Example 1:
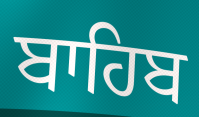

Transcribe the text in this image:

ਬਾਹਿਬ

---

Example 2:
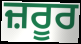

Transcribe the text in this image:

ਜ਼ਰੂਰ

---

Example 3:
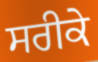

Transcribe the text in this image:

ਸਰੀਕੇ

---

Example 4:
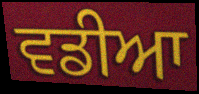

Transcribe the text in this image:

ਵਡੀਆ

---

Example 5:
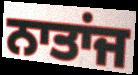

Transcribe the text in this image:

ਨਾਤਾਂਜ